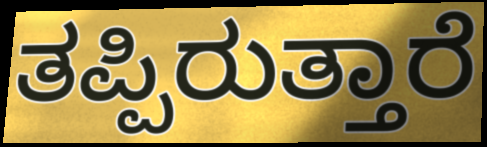
ತಪ್ಪಿರುತ್ತಾರೆ